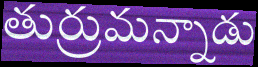
తుర్రుమన్నాడు